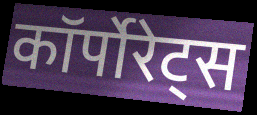
कॉर्पोरेट्स